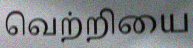
வெற்றியை